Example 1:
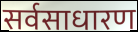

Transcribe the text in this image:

सर्वसाधारण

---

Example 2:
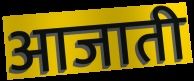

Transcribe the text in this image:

आजाती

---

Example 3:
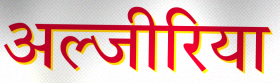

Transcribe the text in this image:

अल्जीरिया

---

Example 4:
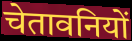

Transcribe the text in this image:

चेतावनियों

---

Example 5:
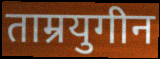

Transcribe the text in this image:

ताम्रयुगीन